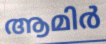
ആമിർ